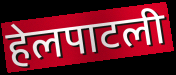
हेलपाटली